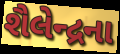
શૈલેન્દ્રના